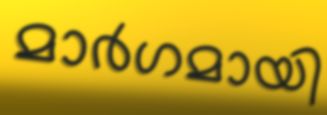
മാർഗമായി